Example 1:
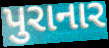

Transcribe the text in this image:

પુરાનાર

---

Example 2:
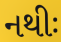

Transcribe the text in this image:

નથીઃ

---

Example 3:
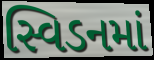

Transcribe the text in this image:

સ્વિડનમાં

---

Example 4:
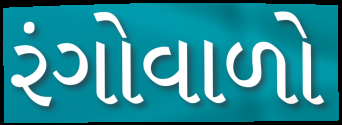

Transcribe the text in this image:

રંગોવાળો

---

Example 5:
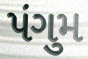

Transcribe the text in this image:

પંગુમ